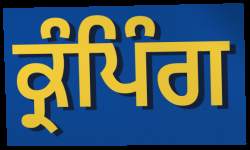
ਕ੍ਰੰਪਿੰਗ